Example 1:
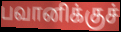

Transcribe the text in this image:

பவானிக்குச்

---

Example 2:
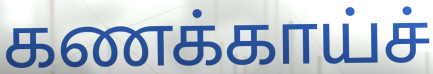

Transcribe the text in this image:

கணக்காய்ச்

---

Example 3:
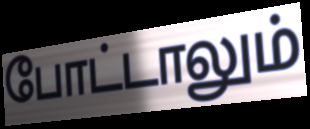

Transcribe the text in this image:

போட்டாலும்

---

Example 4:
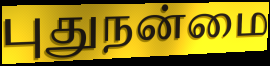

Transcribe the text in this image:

புதுநன்மை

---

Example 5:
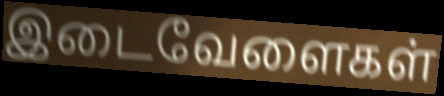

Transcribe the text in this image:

இடைவேளைகள்